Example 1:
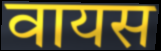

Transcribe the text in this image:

वायस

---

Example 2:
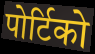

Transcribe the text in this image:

पोर्टिको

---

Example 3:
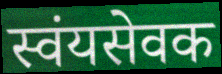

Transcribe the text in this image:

स्वंयसेवक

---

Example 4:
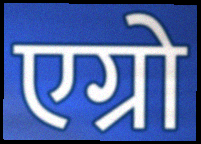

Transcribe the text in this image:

एग्रो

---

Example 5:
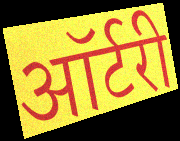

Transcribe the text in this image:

ऑर्टरी